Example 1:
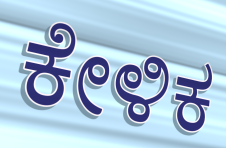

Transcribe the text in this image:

ಕೇಳಿಕ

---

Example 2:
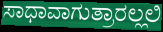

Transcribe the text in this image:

ಸಾಧಾವಾಗುತ್ರಾರಲ್ಲಲಿ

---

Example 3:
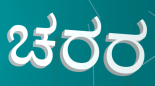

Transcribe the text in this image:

ಚರರ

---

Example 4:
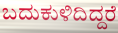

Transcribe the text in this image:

ಬದುಕುಳಿದಿದ್ದರೆ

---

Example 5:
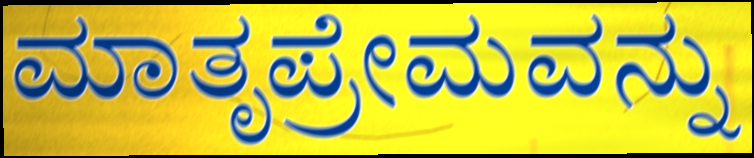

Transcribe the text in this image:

ಮಾತೃಪ್ರೇಮವನ್ನು